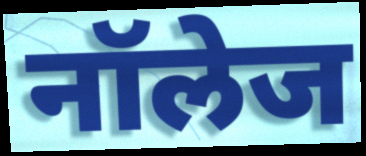
नॉलेज